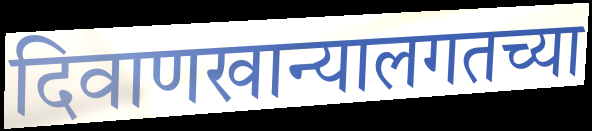
दिवाणखान्यालगतच्या